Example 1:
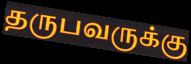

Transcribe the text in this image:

தருபவருக்கு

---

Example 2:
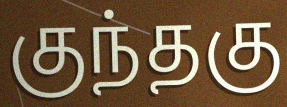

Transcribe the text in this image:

குந்தகு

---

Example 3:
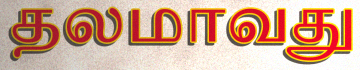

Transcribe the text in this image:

தலமாவது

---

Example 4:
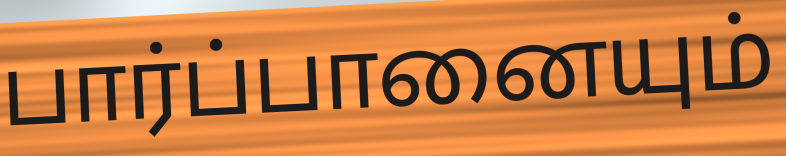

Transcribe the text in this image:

பார்ப்பானையும்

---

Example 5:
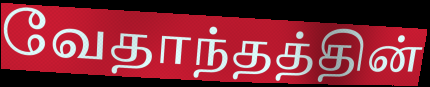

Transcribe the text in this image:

வேதாந்தத்தின்